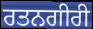
ਰਤਨਗੀਰੀ